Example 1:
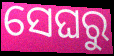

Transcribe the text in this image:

ସେଘରୁ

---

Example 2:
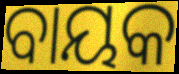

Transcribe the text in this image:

ବାୟକ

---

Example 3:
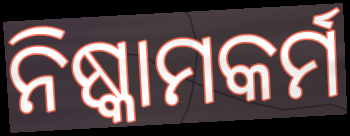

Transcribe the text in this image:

ନିଷ୍କାମକର୍ମ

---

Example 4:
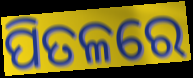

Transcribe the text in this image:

ପିତଳରେ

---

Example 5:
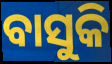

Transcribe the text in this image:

ବାସୁକି